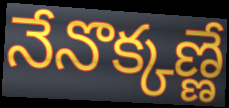
నేనొక్కణ్ణే